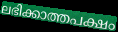
ലഭിക്കാത്തപക്ഷം